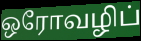
ஒரோவழிப்